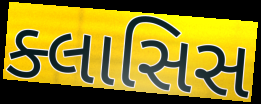
ક્લાસિસ